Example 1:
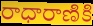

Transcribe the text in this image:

రాధారాణికి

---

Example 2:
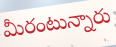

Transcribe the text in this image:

మీరంటున్నారు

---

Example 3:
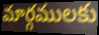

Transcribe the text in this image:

మార్గములకు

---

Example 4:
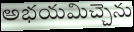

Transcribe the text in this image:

అభయమిచ్చెను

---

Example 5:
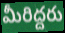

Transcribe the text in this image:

మీరిద్దరు